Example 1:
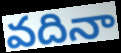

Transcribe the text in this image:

వదినా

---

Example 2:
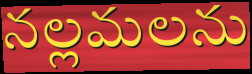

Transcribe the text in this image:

నల్లమలను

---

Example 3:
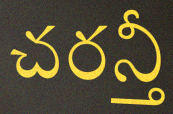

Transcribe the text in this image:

చరన్తీ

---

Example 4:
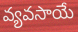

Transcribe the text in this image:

వ్యవసాయే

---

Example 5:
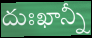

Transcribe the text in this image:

దుఃఖాన్నీ